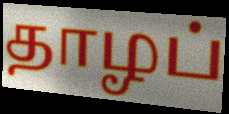
தாழப்